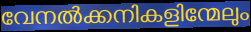
വേനൽക്കനികളിന്മേലും